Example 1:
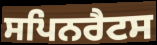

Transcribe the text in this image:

ਸਪਿਨਰੈਟਸ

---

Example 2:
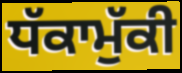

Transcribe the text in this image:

ਧੱਕਾਮੁੱਕੀ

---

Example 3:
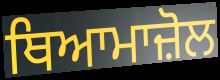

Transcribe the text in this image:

ਥਿਆਮਾਜ਼ੋਲ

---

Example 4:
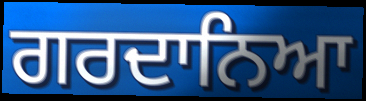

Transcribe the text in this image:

ਗਰਦਾਨਿਆ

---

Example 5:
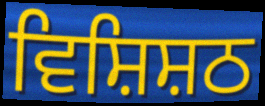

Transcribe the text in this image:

ਵਿਸ਼ਿਸ਼ਠ